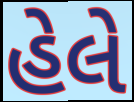
હેલે